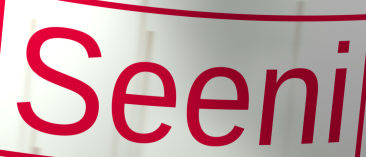
Seeni